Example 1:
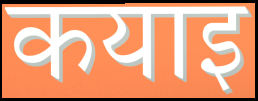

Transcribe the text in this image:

कयाइ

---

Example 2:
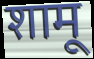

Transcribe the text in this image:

शामू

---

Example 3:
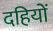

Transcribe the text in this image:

दहियों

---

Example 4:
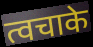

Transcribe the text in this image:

त्वचाके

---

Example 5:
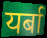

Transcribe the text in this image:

यर्बा